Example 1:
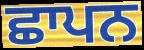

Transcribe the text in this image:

ਛਾਪਨ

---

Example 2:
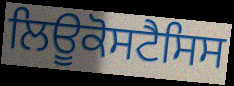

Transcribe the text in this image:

ਲਿਊਕੋਸਟੈਸਿਸ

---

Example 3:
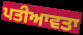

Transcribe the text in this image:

ਪਤੀਆਵਤਾ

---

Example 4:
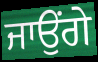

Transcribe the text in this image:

ਜਾਉਂਗੇ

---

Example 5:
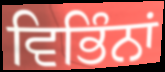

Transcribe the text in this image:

ਵਿਭਿੰਨਾਂ